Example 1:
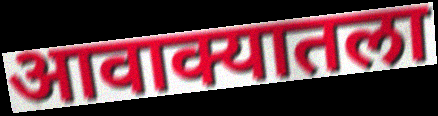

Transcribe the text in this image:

आवाक्यातला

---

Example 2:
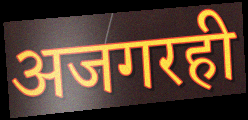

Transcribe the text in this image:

अजगरही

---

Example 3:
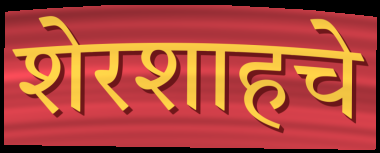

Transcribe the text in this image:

शेरशाहचे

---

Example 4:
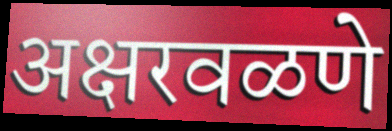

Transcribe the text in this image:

अक्षरवळणे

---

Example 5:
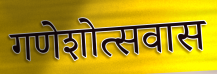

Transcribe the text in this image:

गणेशोत्सवास